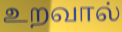
உறவால்